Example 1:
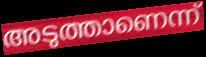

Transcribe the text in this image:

അടുത്താണെന്ന്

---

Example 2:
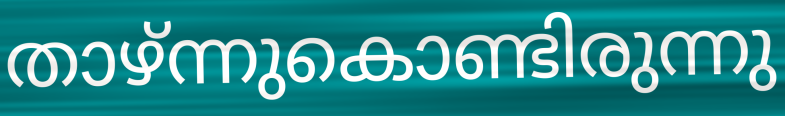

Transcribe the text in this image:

താഴ്ന്നുകൊണ്ടിരുന്നു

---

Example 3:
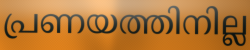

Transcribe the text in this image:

പ്രണയത്തിനില്ല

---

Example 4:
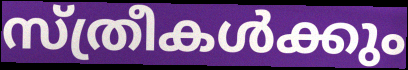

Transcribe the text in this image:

സ്ത്രീകൾക്കും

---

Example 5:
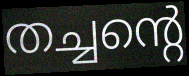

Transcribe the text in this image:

തച്ചന്റെ